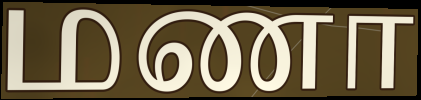
மணா